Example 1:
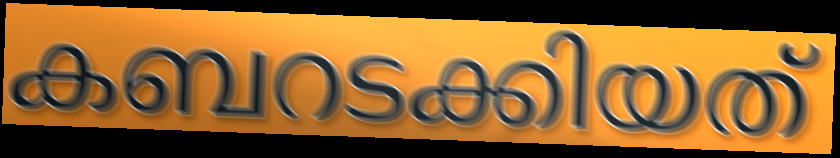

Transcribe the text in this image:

കബറടക്കിയത്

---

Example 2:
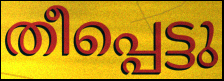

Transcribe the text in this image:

തീപ്പെട്ടു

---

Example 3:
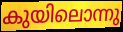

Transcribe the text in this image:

കുയിലൊന്നു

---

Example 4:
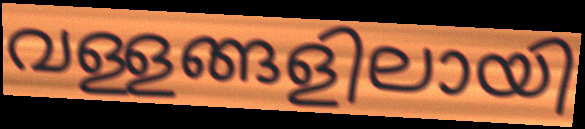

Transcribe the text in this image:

വള്ളങ്ങളിലായി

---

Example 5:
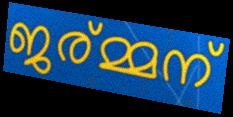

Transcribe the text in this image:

ജര്മ്മന്